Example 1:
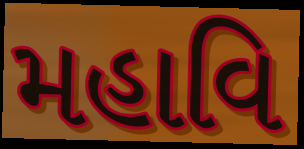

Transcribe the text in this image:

મહાવિ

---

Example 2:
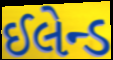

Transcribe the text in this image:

ઈલેન્ડ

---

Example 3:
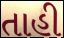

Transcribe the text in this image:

તાહી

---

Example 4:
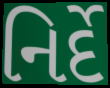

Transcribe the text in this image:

નિર્દે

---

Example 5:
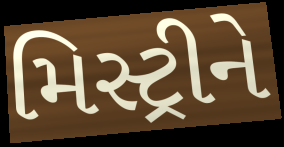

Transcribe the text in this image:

મિસ્ટ્રીને